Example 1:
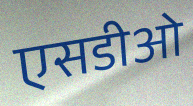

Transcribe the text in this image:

एसडीओ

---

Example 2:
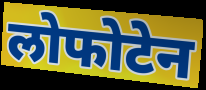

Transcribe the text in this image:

लोफोटेन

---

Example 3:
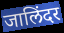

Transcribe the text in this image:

जालिंदर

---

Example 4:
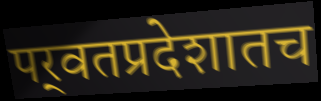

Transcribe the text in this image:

पर्वतप्रदेशातच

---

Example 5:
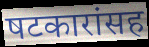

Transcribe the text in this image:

षटकारांसह